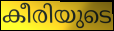
കീരിയുടെ